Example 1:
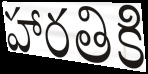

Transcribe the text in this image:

హారతికి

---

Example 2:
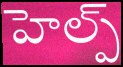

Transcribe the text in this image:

హెల్ప్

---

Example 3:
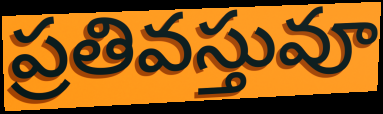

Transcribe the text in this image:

ప్రతివస్తువూ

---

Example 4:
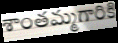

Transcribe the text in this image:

శాంతమ్మగారికి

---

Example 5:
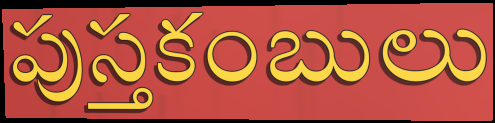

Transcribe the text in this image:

పుస్తకంబులు